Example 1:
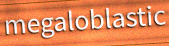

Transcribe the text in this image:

megaloblastic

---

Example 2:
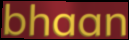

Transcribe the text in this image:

bhaan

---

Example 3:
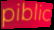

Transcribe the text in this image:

piblic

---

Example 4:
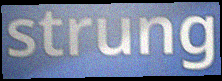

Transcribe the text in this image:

strung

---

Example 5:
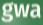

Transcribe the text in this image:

gwa